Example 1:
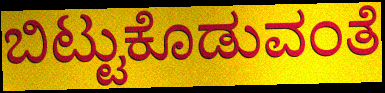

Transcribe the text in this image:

ಬಿಟ್ಟುಕೊಡುವಂತೆ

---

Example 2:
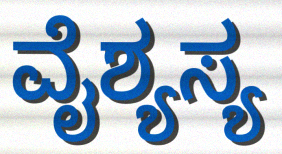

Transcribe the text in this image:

ವೈಶ್ಯಸ್ಯ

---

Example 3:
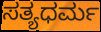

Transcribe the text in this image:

ಸತ್ಯಧರ್ಮ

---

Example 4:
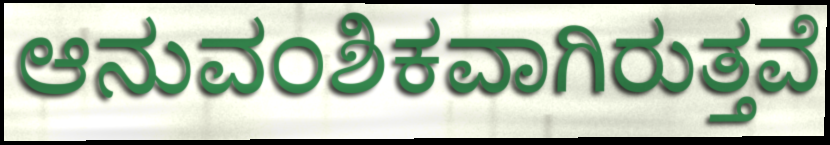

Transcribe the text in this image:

ಆನುವಂಶಿಕವಾಗಿರುತ್ತವೆ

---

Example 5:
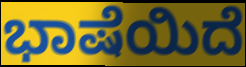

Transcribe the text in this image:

ಭಾಷೆಯಿದೆ